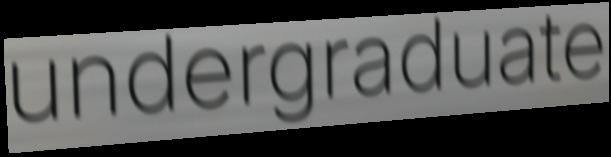
undergraduate